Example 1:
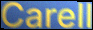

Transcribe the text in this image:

Carell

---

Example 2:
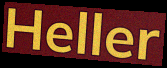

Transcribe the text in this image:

Heller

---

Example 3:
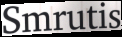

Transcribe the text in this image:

Smrutis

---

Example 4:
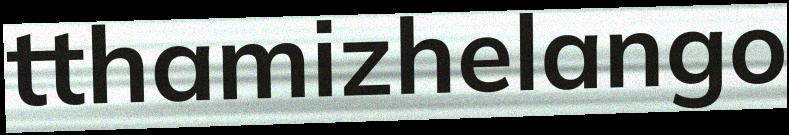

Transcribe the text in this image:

tthamizhelango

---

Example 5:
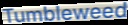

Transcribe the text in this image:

Tumbleweed